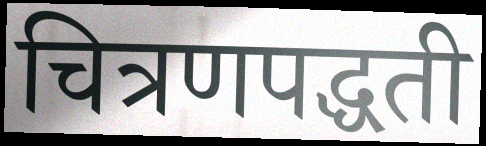
चित्रणपद्धती